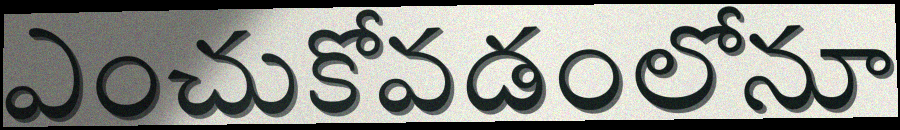
ఎంచుకోవడంలోనూ